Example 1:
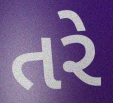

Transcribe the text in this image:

તરે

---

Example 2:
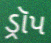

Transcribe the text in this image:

ડ્રૉપ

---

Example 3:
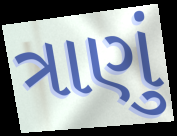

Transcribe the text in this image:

ત્રાણું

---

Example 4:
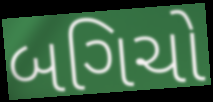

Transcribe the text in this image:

બગિચો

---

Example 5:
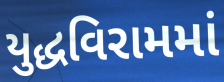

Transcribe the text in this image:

યુદ્ધવિરામમાં